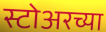
स्टोअरच्या